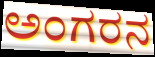
ಅಂಗರನ